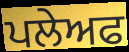
ਪਲੇਅਫ